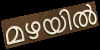
മഴയിൽ